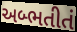
અબ્ભતીતં